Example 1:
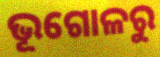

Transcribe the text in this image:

ଭୂଗୋଳରୁ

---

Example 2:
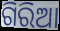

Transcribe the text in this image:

ଗିରିଆ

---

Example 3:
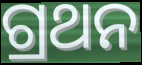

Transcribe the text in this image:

ଗ୍ରଥନ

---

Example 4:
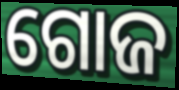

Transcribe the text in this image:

ଗୋଜ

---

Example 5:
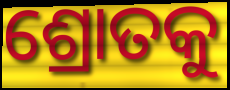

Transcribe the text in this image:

ଶ୍ରୋତକୁ